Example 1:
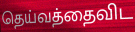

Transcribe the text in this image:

தெய்வத்தைவிட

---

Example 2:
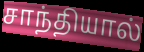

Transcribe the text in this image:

சாந்தியால்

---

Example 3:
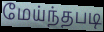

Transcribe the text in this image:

மேய்ந்தபடி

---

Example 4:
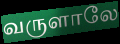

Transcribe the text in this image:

வருளாலே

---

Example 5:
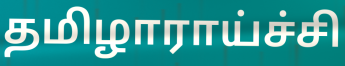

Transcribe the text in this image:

தமிழாராய்ச்சி